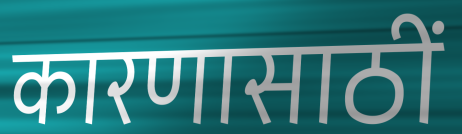
कारणासाठीं